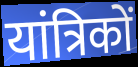
यांत्रिकों